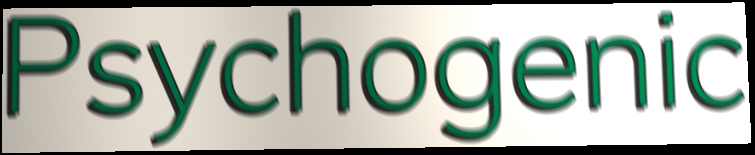
Psychogenic